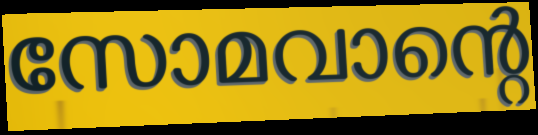
സോമവാന്റെ